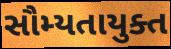
સૌમ્યતાયુક્ત